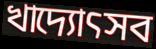
খাদ্যোৎসব